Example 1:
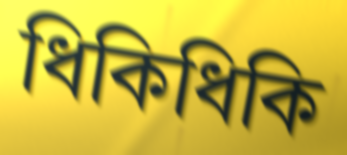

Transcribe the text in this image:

ধিকিধিকি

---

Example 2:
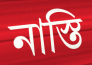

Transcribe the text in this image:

নাস্তি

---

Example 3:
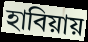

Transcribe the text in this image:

হাবিয়ায়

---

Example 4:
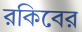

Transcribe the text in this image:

রকিবের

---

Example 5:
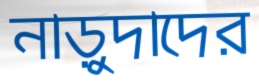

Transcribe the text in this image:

নাড়ুদাদের